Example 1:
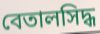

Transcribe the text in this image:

বেতালসিদ্ধ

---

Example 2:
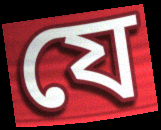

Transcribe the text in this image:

যে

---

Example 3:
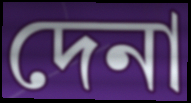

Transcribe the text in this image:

দেনা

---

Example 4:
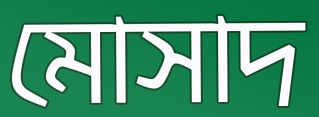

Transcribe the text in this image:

মোসাদ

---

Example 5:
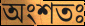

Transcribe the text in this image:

অংশতঃ